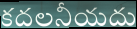
కదలనీయదు